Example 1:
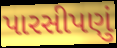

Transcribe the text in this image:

પારસીપણું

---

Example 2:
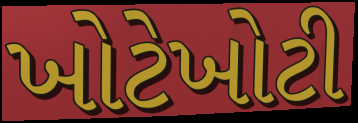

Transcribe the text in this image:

ખોટેખોટી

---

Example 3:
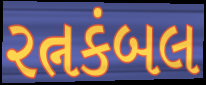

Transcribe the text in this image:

રત્નકંબલ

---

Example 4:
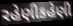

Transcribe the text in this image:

રહેણીકહેણી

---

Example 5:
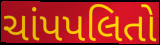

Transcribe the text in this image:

ચાંપપલિતો